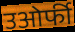
उओर्फी